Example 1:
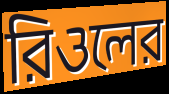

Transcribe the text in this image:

রিওলের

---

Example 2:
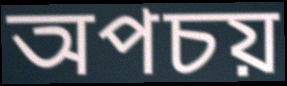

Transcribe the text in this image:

অপচয়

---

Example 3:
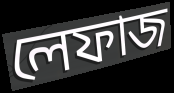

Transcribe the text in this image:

লেফাজ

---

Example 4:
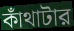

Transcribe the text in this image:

কাঁথাটার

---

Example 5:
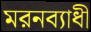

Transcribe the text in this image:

মরনব্যাধী